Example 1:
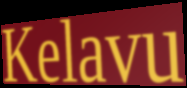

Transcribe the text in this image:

Kelavu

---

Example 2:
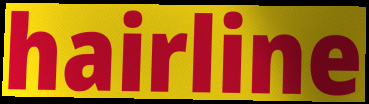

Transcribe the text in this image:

hairline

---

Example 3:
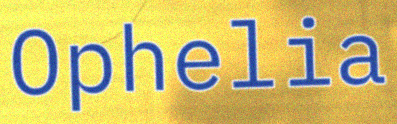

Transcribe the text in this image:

Ophelia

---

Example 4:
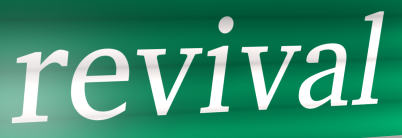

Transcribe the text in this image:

revival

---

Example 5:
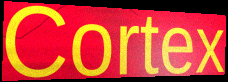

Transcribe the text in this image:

Cortex